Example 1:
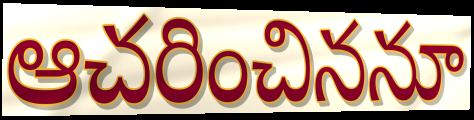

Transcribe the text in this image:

ఆచరించిననూ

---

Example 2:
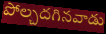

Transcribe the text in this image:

పోల్చదగినవాడు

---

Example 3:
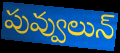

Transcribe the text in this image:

పువ్వులున్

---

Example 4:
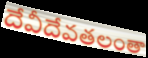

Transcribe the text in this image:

దేవీదేవతలంతా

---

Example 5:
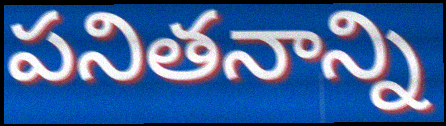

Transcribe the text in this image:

పనితనాన్ని